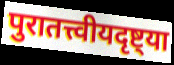
पुरातत्त्वीयदृष्ट्या